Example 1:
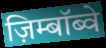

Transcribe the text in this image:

ज़िम्बॉब्वे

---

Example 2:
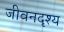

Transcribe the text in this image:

जीवनदृश्य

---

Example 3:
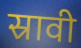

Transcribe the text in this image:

स्रावी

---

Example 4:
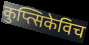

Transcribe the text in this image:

कुप्त्सिकेविच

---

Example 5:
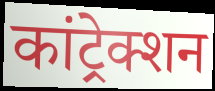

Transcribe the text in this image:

कांट्रेक्शन